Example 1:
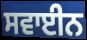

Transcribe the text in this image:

ਸਵਾਈਨ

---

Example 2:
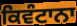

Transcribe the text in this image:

ਕਿਵੰਟਾਨਾ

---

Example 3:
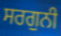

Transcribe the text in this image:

ਸਰਗੁਨੀ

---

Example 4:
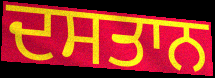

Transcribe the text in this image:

ਦਸਤਾਨ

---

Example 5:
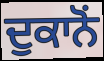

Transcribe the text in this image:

ਦੁਕਾਨੋਂ